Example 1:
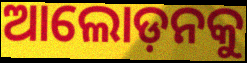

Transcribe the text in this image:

ଆଲୋଡ଼ନକୁ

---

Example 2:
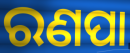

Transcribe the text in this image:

ରଣପା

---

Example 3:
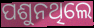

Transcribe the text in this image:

ପଶୁନଥିଲେ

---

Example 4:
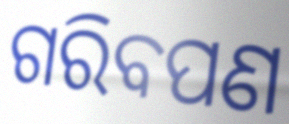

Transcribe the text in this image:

ଗରିବପଣ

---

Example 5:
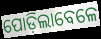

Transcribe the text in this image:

ପୋଡ଼ିଲାବେଳେ